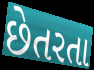
છેતરતા